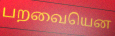
பறவையென